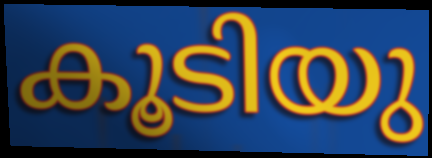
കൂടിയു